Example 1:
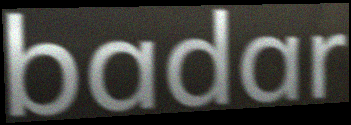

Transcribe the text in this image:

badar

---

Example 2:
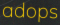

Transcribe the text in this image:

adops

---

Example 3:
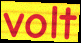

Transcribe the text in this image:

volt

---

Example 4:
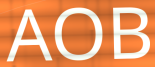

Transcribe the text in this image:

AOB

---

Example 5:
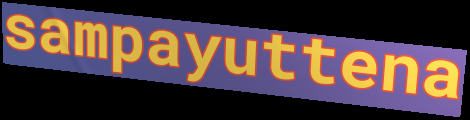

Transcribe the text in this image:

sampayuttena